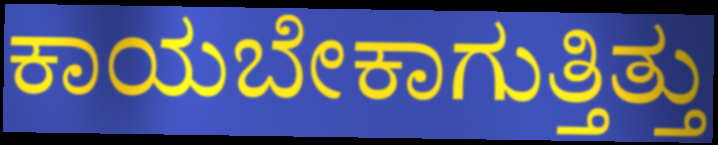
ಕಾಯಬೇಕಾಗುತ್ತಿತ್ತು